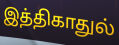
இத்திகாதுல்